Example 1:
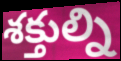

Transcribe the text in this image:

శక్తుల్ని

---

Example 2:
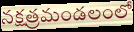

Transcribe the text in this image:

నక్షత్రమండలంలో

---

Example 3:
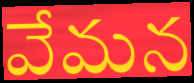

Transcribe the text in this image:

వేమన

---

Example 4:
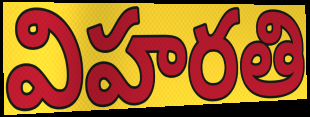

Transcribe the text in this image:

విహరతి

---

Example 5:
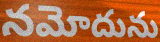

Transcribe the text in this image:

నమోదును